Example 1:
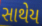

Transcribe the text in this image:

સાથેય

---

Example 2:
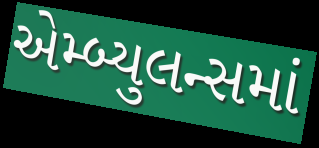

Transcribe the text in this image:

એમ્બ્યુલન્સમાં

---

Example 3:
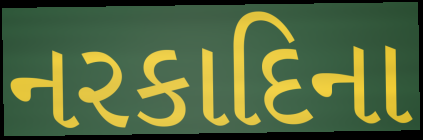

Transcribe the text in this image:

નરકાદિના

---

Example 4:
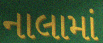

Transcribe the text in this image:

નાલામાં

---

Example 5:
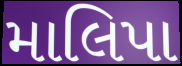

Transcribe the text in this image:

માલિપા